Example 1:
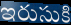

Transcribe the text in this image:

ఇరుసుకి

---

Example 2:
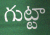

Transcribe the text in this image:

గుట్టా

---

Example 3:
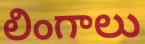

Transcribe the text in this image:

లింగాలు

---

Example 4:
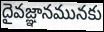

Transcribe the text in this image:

దైవజ్ఞానమునకు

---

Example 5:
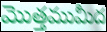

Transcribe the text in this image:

మొత్తముమీద